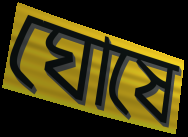
ঘোষে